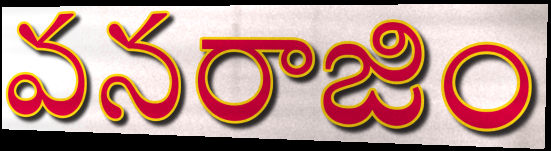
వనరాజిం